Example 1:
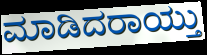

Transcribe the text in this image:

ಮಾಡಿದರಾಯ್ತು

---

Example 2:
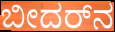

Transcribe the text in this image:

ಬೀದರ್‌ನ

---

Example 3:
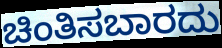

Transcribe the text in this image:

ಚಿಂತಿಸಬಾರದು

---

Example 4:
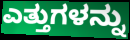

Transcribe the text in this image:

ಎತ್ತುಗಳನ್ನು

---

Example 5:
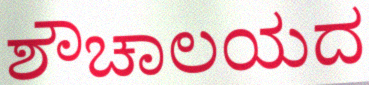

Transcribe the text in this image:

ಶೌಚಾಲಯದ